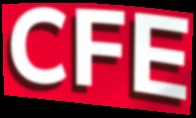
CFE